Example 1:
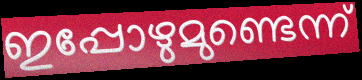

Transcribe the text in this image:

ഇപ്പോഴുമുണ്ടെന്ന്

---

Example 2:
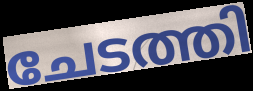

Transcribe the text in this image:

ചേടത്തി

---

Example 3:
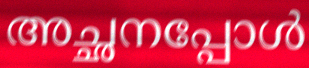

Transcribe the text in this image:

അച്ഛനപ്പോൾ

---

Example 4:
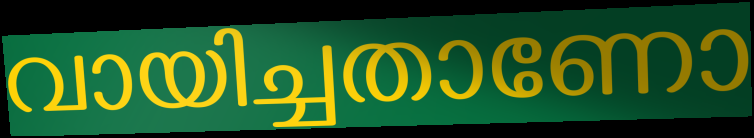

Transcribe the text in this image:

വായിച്ചതാണോ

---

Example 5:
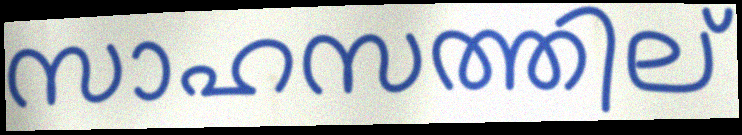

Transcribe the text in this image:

സാഹസത്തില്